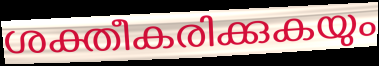
ശക്തീകരിക്കുകയും